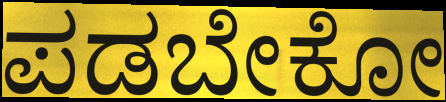
ಪಡಬೇಕೋ